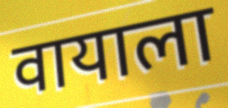
वायाला